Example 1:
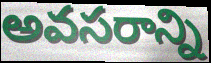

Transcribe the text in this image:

అవసరాన్ని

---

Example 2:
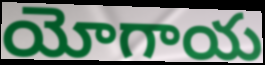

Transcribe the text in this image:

యోగాయ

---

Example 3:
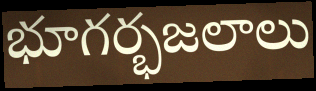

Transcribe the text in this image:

భూగర్భజలాలు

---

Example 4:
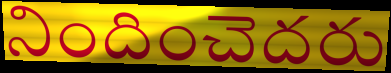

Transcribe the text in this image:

నిందించెదరు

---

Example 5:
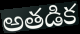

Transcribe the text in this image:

అతడిక